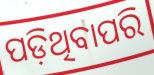
ପଡ଼ିଥିବାପରି